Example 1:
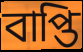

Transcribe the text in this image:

বাপ্তি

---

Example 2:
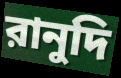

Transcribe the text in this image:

রানুদি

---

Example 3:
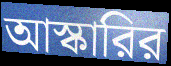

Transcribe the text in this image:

আস্কারির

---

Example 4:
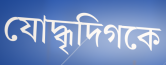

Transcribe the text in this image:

যোদ্ধৃদিগকে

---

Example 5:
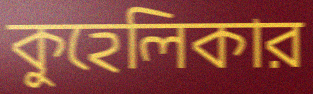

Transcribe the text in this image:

কুহেলিকার